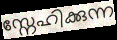
സ്നേഹിക്കുന്ന